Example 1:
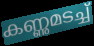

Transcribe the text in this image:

കണ്ണുമടച്ച്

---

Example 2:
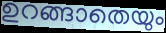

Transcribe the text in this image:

ഉറങ്ങാതെയും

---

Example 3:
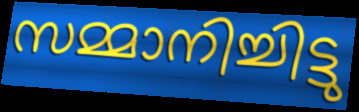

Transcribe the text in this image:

സമ്മാനിച്ചിട്ടു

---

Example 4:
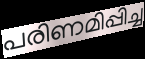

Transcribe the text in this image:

പരിണമിപ്പിച്ച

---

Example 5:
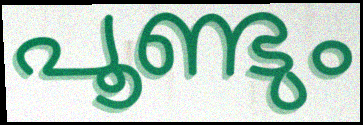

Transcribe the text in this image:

പൂണ്ടും